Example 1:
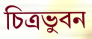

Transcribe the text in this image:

চিত্রভুবন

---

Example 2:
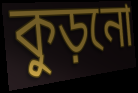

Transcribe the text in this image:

কুড়নো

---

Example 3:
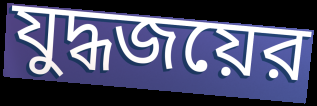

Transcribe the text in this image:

যুদ্ধজয়ের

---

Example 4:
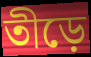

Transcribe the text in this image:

তীড়ে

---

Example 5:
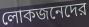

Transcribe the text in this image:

লোকজনেদের